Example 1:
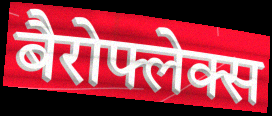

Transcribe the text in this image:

बैरोफ्लेक्स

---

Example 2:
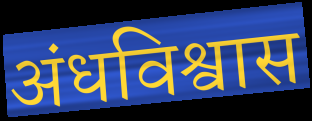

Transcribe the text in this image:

अंधविश्वास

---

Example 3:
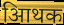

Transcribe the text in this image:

आिथक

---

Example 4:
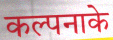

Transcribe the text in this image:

कल्पनाके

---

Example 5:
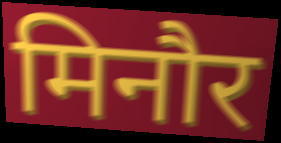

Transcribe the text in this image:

मिनौर